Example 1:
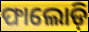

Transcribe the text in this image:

ଫାଲୋଡ଼ି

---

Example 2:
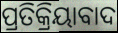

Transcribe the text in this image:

ପ୍ରତିକ୍ରିୟାବାଦ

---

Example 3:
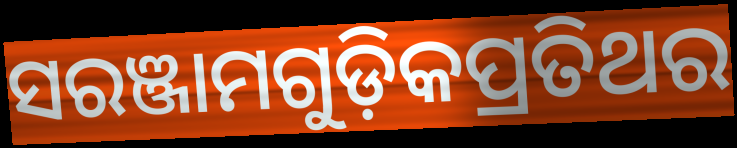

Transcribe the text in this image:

ସରଞ୍ଜାମଗୁଡ଼ିକପ୍ରତିଥର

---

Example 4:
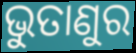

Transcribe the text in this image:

ଭୁତାଣୁର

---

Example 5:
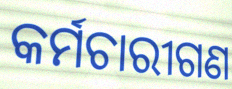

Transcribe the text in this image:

କର୍ମଚାରୀଗଣ